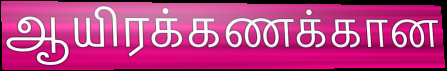
ஆயிரக்கணக்கான